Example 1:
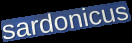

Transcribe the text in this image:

sardonicus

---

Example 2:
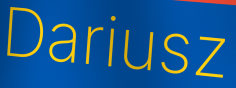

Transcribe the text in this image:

Dariusz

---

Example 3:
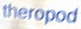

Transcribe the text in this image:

theropod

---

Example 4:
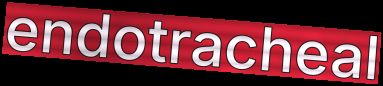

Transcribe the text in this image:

endotracheal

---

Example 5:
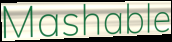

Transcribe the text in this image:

Mashable